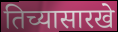
तिच्यासारखे